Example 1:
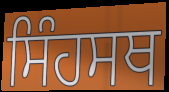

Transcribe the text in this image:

ਸਿੰਹਸਥ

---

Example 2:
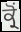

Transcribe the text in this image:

ਕ੍ਰੋਂ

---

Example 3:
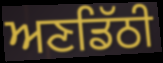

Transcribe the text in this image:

ਅਣਡਿੱਠੀ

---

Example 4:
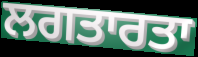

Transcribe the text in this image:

ਲਗਤਾਰਤਾ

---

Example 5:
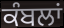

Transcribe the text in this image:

ਕੰਬਲਾਂ